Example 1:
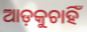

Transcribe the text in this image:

ଆଡ଼କୁଚାହିଁ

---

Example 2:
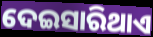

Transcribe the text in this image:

ଦେଇସାରିଥାଏ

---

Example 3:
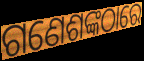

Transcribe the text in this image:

ଗଣେଶଙ୍କଠାରେ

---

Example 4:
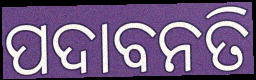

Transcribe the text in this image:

ପଦାବନତି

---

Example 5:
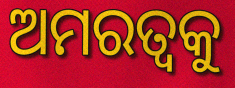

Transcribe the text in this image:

ଅମରତ୍ୱକୁ